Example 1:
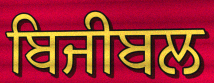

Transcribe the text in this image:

ਬਿਜੀਬਲ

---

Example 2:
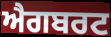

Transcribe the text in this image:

ਐਗਬਰਟ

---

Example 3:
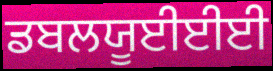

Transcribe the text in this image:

ਡਬਲਯੂਈਈਈ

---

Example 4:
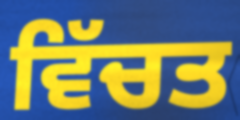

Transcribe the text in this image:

ਵਿੱਚਤ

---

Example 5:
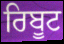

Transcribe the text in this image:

ਰਿਬੂਟ